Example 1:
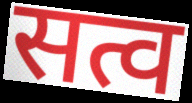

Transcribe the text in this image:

सत्व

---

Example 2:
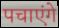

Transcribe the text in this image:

पचाएंगे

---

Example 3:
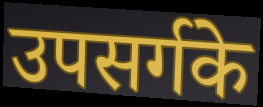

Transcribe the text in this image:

उपसर्गके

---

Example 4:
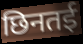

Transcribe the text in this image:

छिनतई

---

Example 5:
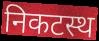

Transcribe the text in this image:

निकटस्थ